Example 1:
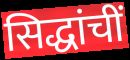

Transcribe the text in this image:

सिद्धांचीं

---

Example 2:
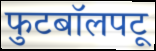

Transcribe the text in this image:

फुटबॉलपटू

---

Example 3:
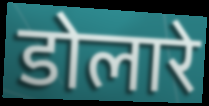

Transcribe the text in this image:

डोलारे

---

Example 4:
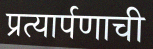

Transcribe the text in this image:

प्रत्यार्पणाची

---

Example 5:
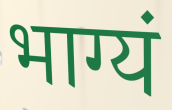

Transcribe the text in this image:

भाग्यं